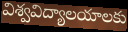
విశ్వవిద్యాలయాలకు